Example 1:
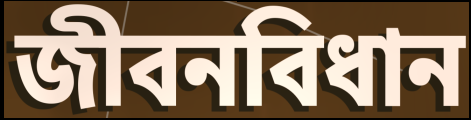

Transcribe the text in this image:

জীবনবিধান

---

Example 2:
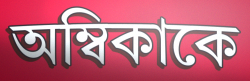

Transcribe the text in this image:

অম্বিকাকে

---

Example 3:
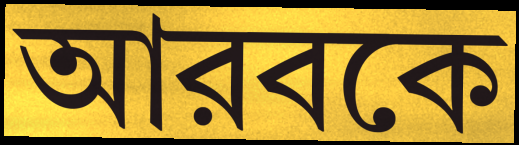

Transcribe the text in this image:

আরবকে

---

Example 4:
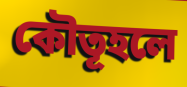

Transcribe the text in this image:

কৌতূহলে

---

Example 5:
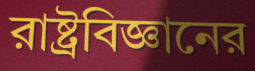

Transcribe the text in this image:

রাষ্ট্রবিজ্ঞানের